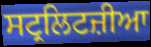
ਸਟ੍ਰਲਿਟਜ਼ੀਆ